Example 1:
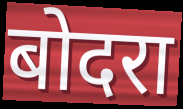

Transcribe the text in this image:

बोदरा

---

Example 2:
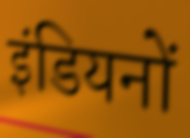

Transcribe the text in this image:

इंडियनों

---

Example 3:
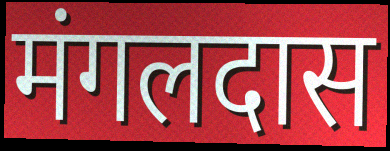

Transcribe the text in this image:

मंगलदास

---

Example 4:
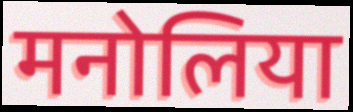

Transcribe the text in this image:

मनोलिया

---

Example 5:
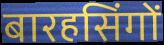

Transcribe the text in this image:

बारहसिंगों